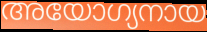
അയോഗ്യനായ